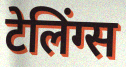
टेलिंग्स